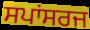
ਸਪਾਂਸਰਜ